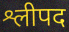
श्लीपद